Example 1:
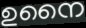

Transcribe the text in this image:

ഉനൈ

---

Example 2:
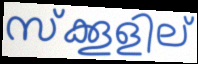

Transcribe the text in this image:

സ്ക്കൂളില്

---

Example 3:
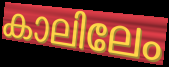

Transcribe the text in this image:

കാലിലേം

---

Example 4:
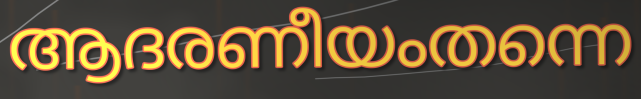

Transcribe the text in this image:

ആദരണീയംതന്നെ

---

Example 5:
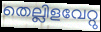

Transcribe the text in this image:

തെല്ലിളവേറ്റു